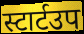
स्टार्टउप